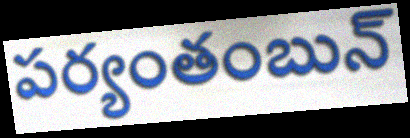
పర్యంతంబున్